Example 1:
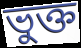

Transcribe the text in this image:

ভুক্ত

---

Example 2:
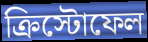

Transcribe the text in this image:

ক্রিস্টোফেল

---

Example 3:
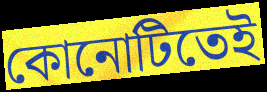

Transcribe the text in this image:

কোনোটিতেই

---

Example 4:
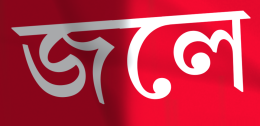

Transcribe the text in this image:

জলে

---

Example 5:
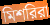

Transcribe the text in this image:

মিশরিরা